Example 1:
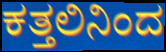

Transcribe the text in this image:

ಕತ್ತಲಿನಿಂದ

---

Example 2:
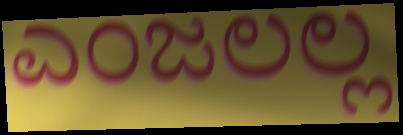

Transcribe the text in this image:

ಎಂಜಲಲ್ಲ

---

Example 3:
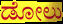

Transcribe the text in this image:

ಡೋಲು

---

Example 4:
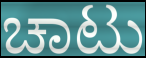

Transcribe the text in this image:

ಚಾಟು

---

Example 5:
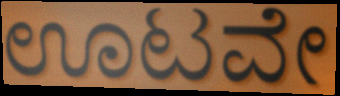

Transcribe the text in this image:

ಊಟವೇ